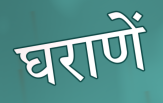
घराणें